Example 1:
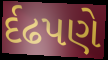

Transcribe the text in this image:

ર્દઢપણે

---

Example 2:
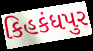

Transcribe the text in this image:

કિહકંધપુર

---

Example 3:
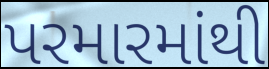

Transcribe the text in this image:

પરમારમાંથી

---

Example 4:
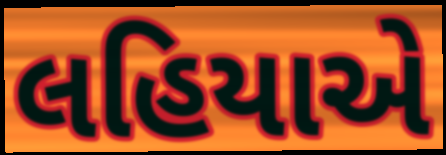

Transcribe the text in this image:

લહિયાએ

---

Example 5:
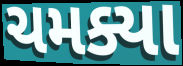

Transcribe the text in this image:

ચમક્યા